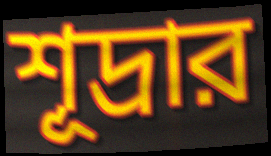
শূদ্রার